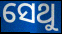
ସେଥୁ